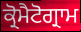
ਕ੍ਰੋਮੈਟੋਗ੍ਰਾਮ